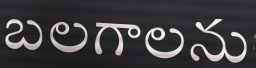
బలగాలను